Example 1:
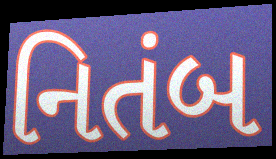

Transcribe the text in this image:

નિતંબ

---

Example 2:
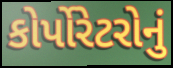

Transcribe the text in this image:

કોર્પોરેટરોનું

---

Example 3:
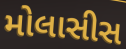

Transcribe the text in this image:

મોલાસીસ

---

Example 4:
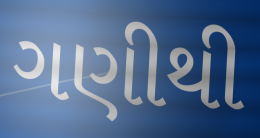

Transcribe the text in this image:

ગણીથી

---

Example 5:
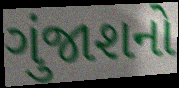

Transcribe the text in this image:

ગુંજાશનો